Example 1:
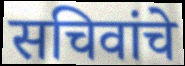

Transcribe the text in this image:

सचिवांचे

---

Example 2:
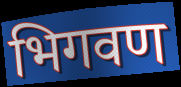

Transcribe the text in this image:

भिगवण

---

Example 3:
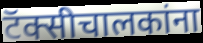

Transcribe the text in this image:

टॅक्सीचालकांना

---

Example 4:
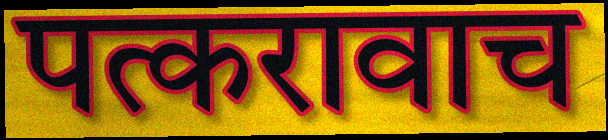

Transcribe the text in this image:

पत्करावाच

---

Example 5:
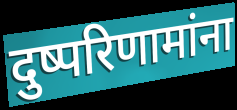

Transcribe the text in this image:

दुष्परिणामांना